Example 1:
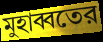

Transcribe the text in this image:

মুহাব্বতের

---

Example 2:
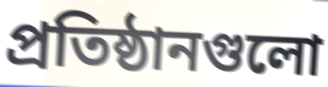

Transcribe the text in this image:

প্রতিষ্ঠানগুলো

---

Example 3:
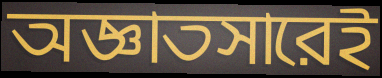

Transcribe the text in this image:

অজ্ঞাতসারেই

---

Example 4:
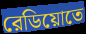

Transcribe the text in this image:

রেডিয়োতে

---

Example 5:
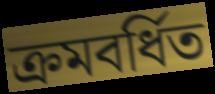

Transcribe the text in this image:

ক্রমবর্ধিত